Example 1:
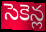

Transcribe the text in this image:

సెకెన్ల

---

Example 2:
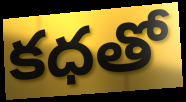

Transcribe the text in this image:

కధతో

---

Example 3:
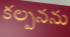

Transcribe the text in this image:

కల్పనను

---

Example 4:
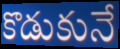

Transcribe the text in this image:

కొడుకునే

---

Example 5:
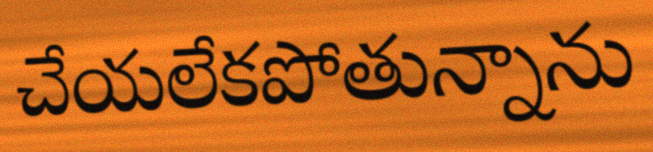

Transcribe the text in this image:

చేయలేకపోతున్నాను